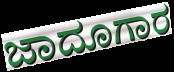
ಜಾದೂಗಾರ